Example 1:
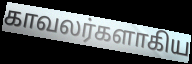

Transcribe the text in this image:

காவலர்களாகிய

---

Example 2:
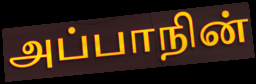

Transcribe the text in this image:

அப்பாநின்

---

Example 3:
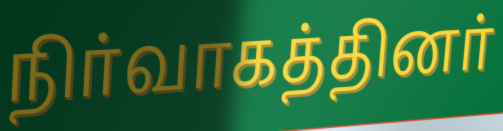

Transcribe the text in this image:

நிர்வாகத்தினர்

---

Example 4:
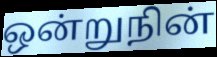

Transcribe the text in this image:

ஒன்றுநின்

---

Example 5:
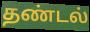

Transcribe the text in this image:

தண்டல்